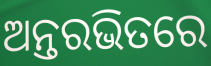
ଅନ୍ତରଭିତରେ